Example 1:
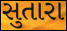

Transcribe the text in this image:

સુતારા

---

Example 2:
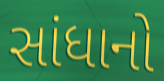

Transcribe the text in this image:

સાંધાનો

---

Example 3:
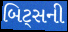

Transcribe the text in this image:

બિટ્સની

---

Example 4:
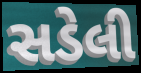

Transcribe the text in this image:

સડેલી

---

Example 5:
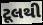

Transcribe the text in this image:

ટૂલથી